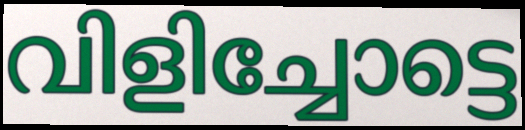
വിളിച്ചോട്ടെ